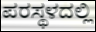
ಪರಸ್ಥಳದಲ್ಲಿ